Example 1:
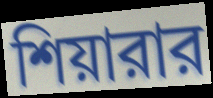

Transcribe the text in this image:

শিয়ারার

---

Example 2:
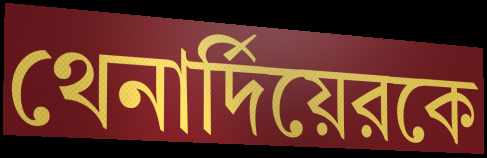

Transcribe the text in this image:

থেনার্দিয়েরকে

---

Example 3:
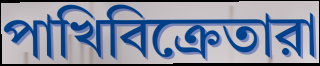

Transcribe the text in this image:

পাখিবিক্রেতারা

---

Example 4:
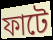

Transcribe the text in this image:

ফাটে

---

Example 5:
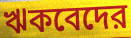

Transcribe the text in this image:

ঋকবেদের